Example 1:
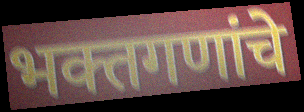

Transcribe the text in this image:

भक्तगणांचे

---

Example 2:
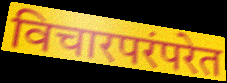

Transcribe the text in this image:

विचारपरंपरेत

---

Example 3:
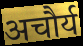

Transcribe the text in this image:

अचौर्य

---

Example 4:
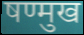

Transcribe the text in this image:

षण्मुख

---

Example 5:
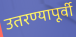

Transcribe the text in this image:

उतरण्यापूर्वी